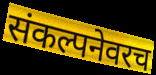
संकल्पनेवरच